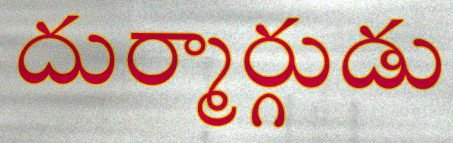
దుర్మార్గుడు